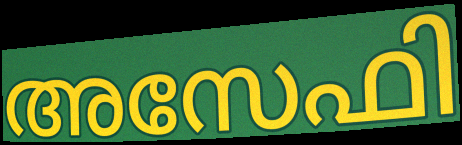
അസേഫി